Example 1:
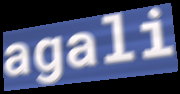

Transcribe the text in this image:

agali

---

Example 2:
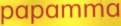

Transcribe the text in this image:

papamma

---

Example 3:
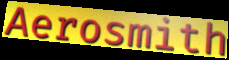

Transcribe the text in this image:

Aerosmith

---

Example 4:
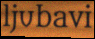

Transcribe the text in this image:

ljubavi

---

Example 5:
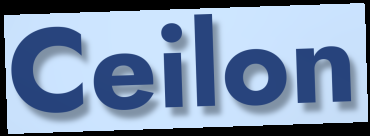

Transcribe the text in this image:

Ceilon